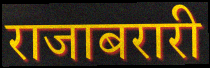
राजाबरारी